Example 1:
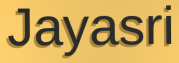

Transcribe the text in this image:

Jayasri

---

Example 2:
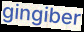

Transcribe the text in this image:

gingiber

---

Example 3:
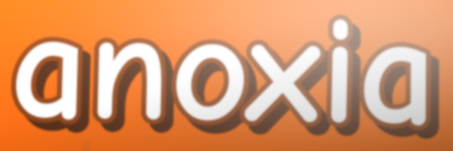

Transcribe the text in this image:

anoxia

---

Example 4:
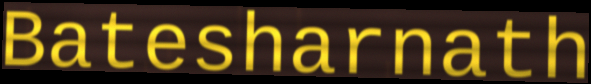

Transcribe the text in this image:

Batesharnath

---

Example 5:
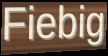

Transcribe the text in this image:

Fiebig